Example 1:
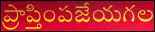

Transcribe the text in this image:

ప్రాప్తింపజేయగల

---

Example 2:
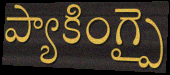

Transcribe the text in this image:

ప్యాకింగ్పై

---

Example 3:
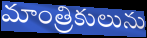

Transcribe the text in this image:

మాంత్రికులును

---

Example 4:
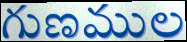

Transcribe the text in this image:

గుణముల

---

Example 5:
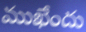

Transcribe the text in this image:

ముఖేందు